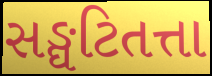
સઙ્ઘટિતત્તા